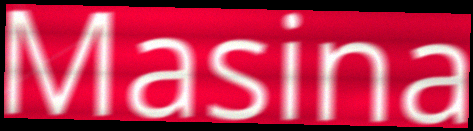
Masina